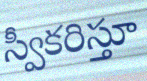
స్వీకరిస్తూ